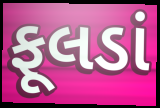
ફૂલડાં